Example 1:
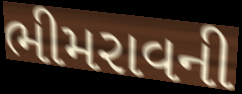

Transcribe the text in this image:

ભીમરાવની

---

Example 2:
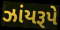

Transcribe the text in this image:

ઝાંયરૂપે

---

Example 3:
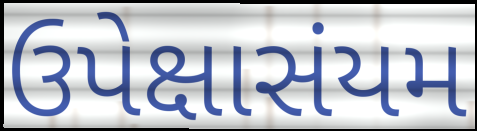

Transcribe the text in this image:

ઉપેક્ષાસંયમ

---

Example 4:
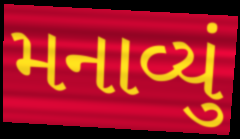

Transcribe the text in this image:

મનાવ્યું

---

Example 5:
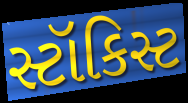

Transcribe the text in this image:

સ્ટૉકિસ્ટ